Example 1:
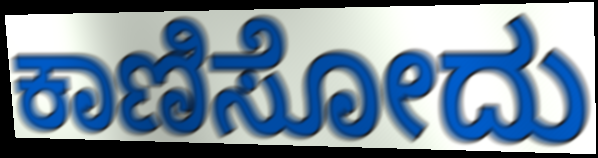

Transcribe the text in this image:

ಕಾಣಿಸೋದು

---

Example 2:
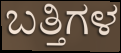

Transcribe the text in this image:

ಬತ್ತಿಗಳ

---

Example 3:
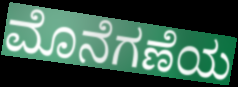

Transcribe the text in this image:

ಮೊನೆಗಣೆಯ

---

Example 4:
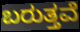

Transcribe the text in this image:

ಬರುತ್ತವೆ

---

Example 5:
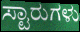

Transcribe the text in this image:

ಸ್ಟಾರುಗಳು